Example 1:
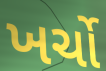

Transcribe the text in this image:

ખર્ચો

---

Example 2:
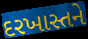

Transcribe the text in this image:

દરખાસ્તને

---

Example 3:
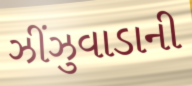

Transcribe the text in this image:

ઝીંઝુવાડાની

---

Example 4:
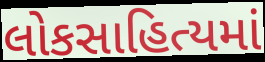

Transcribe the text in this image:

લોકસાહિત્યમાં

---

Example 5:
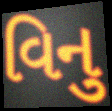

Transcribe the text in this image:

વિનુ